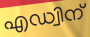
എഡ്വിന്